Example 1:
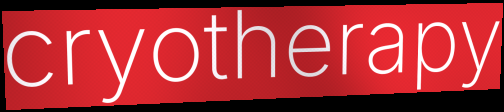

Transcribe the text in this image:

cryotherapy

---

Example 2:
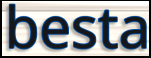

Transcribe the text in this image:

besta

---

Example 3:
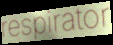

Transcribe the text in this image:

respirator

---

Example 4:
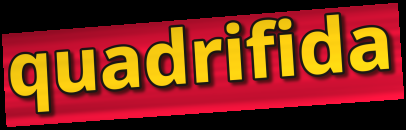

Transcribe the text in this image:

quadrifida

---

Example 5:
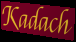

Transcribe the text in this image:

Kadach